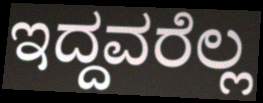
ಇದ್ದವರೆಲ್ಲ